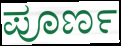
ಪೂರ್ಣ